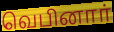
வெபினார்